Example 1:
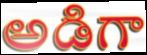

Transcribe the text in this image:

అడిగా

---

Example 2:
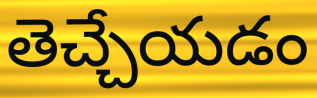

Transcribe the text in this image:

తెచ్చేయడం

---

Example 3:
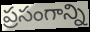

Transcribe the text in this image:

ప్రసంగాన్ని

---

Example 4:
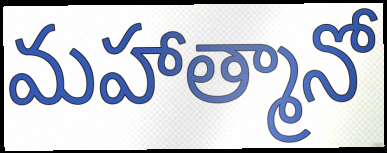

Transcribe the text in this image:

మహాత్మానో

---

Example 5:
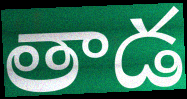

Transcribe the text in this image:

తాడ